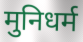
मुनिधर्म